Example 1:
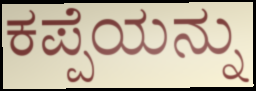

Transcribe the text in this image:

ಕಪ್ಪೆಯನ್ನು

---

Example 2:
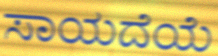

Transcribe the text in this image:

ಸಾಯದೆಯೆ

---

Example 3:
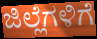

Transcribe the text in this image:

ಜಿಲ್ಲೆಗಳಿಗೆ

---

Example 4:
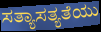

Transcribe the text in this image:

ಸತ್ಯಾಸತ್ಯತೆಯು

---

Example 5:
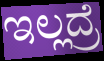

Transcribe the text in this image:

ಇಲ್ಲದ್ರೆ